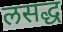
लसद्ध